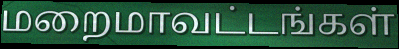
மறைமாவட்டங்கள்